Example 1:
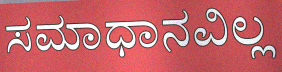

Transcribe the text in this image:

ಸಮಾಧಾನವಿಲ್ಲ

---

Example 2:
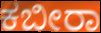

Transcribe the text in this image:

ಕಬೀರಾ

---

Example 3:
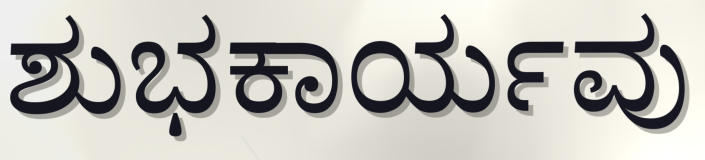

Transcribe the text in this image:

ಶುಭಕಾರ್ಯವು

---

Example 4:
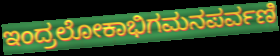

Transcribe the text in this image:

ಇಂದ್ರಲೋಕಾಭಿಗಮನಪರ್ವಣಿ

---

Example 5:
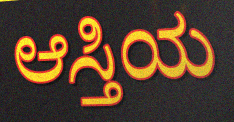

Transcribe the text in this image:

ಆಸ್ತಿಯ